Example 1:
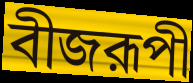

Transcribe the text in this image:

বীজরূপী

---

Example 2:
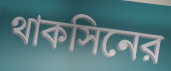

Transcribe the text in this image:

থাকসিনের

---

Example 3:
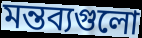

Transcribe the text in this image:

মন্তব্যগুলো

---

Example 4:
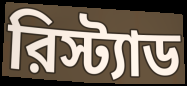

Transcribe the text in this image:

রিস্ট্যাড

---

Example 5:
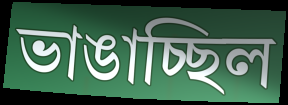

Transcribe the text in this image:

ভাঙাচ্ছিল